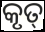
କୃତ୍